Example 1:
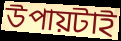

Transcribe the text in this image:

উপায়টাই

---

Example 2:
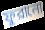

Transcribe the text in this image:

ফুরানো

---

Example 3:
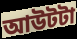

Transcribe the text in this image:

আউটটা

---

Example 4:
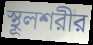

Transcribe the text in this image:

স্থূলশরীর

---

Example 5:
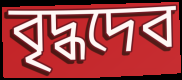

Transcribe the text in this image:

বৃদ্ধদেব